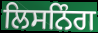
ਲਿਸਨਿੰਗ